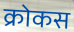
क्रोकस